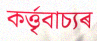
কৰ্ত্তৃবাচ্যৰ